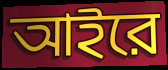
আইরে